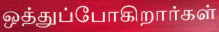
ஒத்துப்போகிறார்கள்